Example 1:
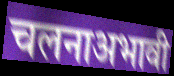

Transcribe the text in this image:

चलनाअभावी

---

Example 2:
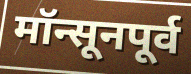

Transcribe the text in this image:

मॉन्सूनपूर्व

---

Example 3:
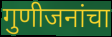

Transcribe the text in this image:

गुणीजनांचा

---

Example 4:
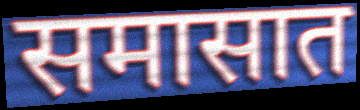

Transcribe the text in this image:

समासात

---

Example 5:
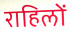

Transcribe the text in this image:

राहिलों